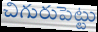
చిగురుపెట్టు